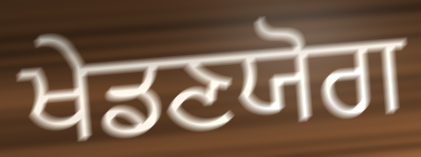
ਖੇਡਣਯੋਗ